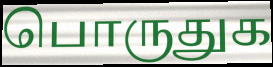
பொருதுக